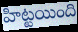
హిట్టయింది